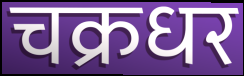
चक्रधर